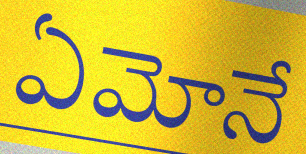
ఏమోనే